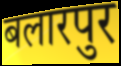
बलारपुर